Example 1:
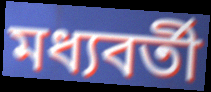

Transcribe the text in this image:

মধ্যবর্তী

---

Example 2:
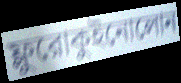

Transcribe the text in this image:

ফ্লুরোকুইনোলোন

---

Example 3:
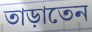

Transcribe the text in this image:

তাড়াতেন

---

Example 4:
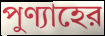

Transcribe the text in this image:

পুণ্যাহের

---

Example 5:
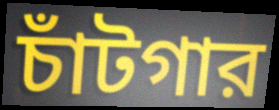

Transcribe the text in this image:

চাঁটগার